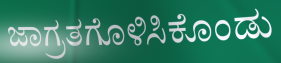
ಜಾಗ್ರತಗೊಳಿಸಿಕೊಂಡು